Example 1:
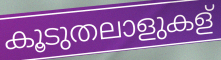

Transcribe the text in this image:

കൂടുതലാളുകള്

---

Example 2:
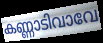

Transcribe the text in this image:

കണ്ണാടിവാവേ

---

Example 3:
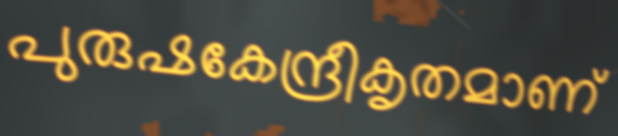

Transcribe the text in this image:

പുരുഷകേന്ദ്രീകൃതമാണ്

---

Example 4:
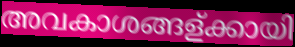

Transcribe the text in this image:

അവകാശങ്ങള്ക്കായി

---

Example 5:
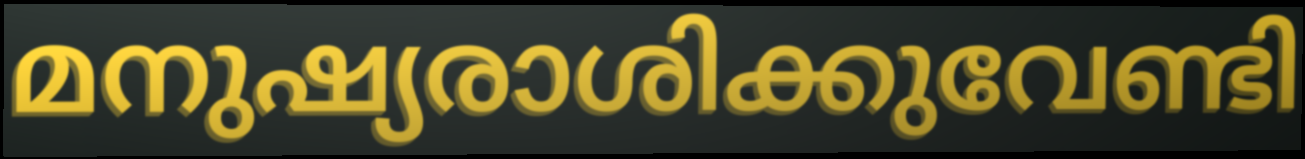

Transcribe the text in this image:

മനുഷ്യരാശിക്കുവേണ്ടി